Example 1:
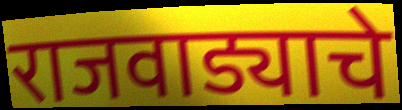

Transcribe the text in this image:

राजवाड्याचे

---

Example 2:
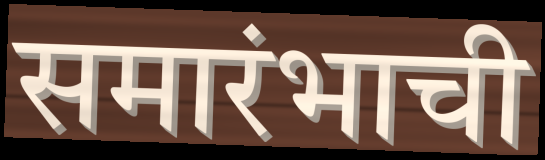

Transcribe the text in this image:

समारंभाची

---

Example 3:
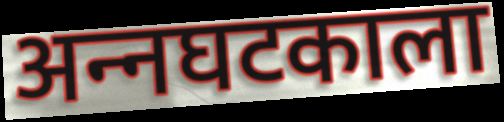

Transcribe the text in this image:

अन्नघटकाला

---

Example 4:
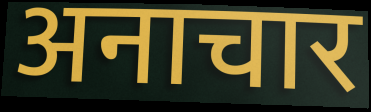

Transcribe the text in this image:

अनाचार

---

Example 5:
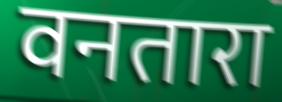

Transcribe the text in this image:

वनतारा